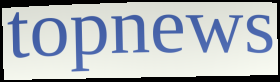
topnews